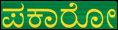
ಪಕಾರೋ